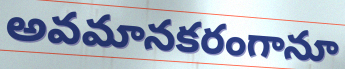
అవమానకరంగానూ